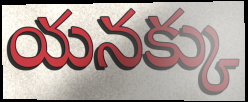
యనక్కు